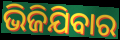
ଭିଜିଯିବାର